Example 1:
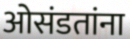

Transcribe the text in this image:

ओसंडतांना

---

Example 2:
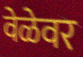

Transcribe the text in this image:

वेळेवर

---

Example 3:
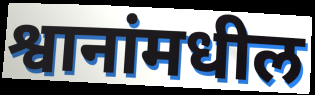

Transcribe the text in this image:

श्वानांमधील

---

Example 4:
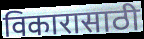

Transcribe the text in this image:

विकारासाठी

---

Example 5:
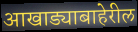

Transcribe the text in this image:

आखाड्याबाहेरील